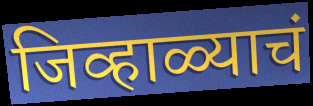
जिव्हाळ्याचं